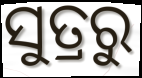
ସୁତ୍ରରୁ